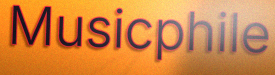
Musicphile